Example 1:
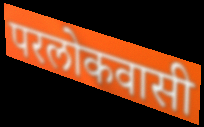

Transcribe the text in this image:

परलोकवासी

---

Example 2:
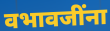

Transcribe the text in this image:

वभावजींना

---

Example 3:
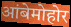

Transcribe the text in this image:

आंबेमोहोर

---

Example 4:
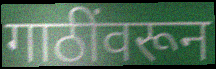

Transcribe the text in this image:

गाठींवरून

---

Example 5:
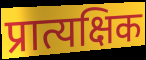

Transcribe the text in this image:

प्रात्यक्षिक